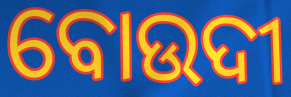
ବୋଉଦୀ